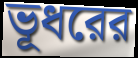
ভূধরের